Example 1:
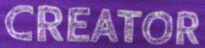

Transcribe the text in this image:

CREATOR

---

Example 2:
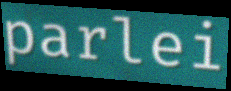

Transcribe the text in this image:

parlei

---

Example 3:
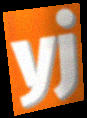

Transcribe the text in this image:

yj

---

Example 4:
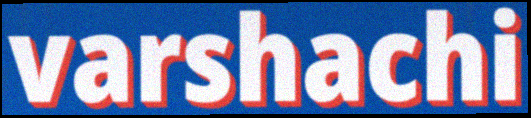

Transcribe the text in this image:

varshachi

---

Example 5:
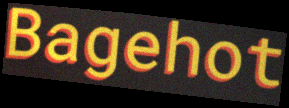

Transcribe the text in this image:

Bagehot